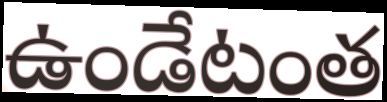
ఉండేటంత